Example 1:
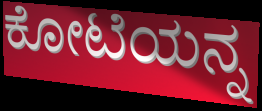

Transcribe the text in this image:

ಕೋಟೆಯನ್ನ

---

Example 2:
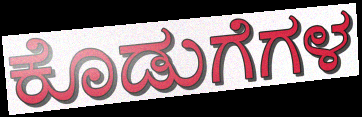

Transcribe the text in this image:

ಕೊಡುಗೆಗಳ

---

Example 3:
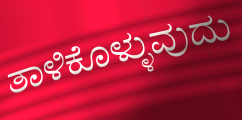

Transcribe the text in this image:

ತಾಳಿಕೊಳ್ಳುವುದು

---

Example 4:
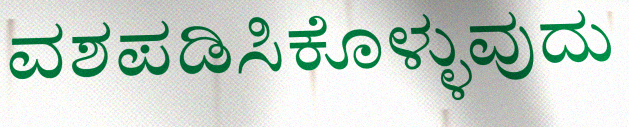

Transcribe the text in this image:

ವಶಪಡಿಸಿಕೊಳ್ಳುವುದು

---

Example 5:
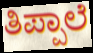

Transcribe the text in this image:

ತಿಪ್ಪಾಲೆ